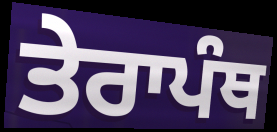
ਤੇਰਾਪੰਥ